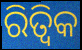
ରିତ୍ୱିକ